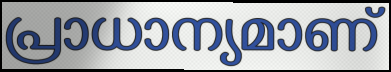
പ്രാധാന്യമാണ്